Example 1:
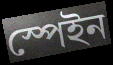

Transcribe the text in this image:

স্পেইন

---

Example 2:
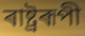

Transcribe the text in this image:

ৰাষ্ট্ৰৰূপী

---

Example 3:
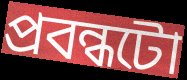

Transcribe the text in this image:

প্ৰবন্ধটো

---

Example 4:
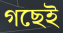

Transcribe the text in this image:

গছেই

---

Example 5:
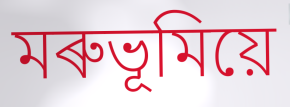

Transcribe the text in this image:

মৰুভূমিয়ে